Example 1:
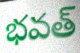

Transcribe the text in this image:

భవత్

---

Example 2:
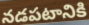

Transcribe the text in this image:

నడపటానికి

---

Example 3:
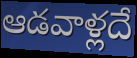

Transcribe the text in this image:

ఆడవాళ్లదే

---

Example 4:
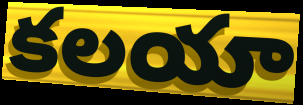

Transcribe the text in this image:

కలయా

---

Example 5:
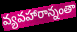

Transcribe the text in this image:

వ్యవహారాన్నంతా